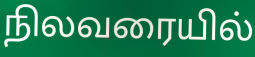
நிலவரையில்